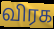
விரக